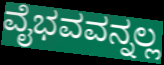
ವೈಭವವನ್ನಲ್ಲ